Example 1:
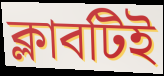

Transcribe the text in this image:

ক্লাবটিই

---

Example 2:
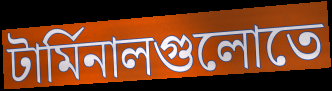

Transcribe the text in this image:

টার্মিনালগুলোতে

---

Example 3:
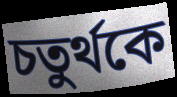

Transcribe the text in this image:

চতুর্থকে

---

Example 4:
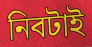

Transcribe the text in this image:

নিবটাই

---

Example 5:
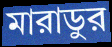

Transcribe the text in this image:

মারাডুর